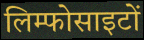
लिम्फोसाइटों